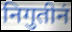
निगुतीनं